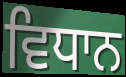
ਵਿਧਾਨ